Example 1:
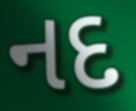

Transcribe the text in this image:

નદ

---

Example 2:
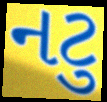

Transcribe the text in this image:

નટુ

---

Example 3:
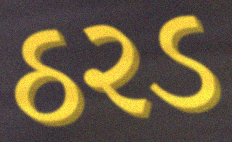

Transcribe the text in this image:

ઠરડ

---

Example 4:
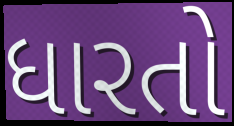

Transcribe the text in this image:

ધારતો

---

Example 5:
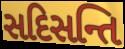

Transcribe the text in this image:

સદિસન્તિ